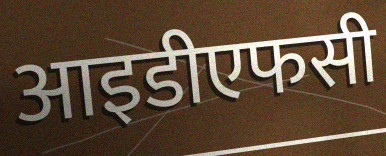
आइडीएफसी